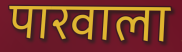
पारवाला